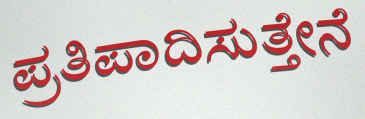
ಪ್ರತಿಪಾದಿಸುತ್ತೇನೆ